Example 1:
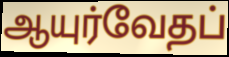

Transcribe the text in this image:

ஆயுர்வேதப்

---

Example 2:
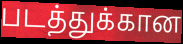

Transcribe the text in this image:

படத்துக்கான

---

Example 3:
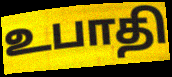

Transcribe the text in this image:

உபாதி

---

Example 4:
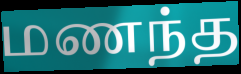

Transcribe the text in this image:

மணந்த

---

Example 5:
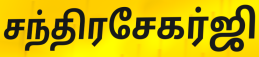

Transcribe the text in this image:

சந்திரசேகர்ஜி